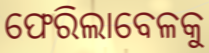
ଫେରିଲାବେଳକୁ